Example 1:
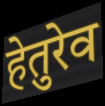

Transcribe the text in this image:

हेतुरेव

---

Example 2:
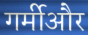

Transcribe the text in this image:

गर्मीऔर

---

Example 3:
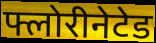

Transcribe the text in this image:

फ्लोरीनेटेड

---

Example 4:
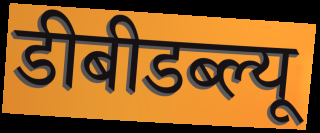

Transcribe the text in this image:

डीबीडब्ल्यू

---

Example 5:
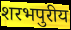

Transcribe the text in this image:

शरभपुरीय